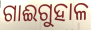
ଗାଈଗୁହାଳ